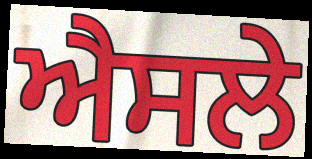
ਐਸਲੇ